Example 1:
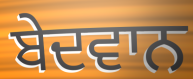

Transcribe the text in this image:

ਬੇਦਵਾਨ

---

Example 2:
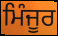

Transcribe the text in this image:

ਮਿੰਜੂਰ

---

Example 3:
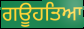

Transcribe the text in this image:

ਗਊਹਤਿਆ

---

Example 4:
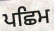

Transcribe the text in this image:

ਪਛਿਮ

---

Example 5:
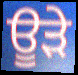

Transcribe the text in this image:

ਊੜੇ